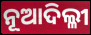
ନୂଆଦିଲ୍ଳୀ